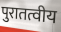
पुरातत्वीय